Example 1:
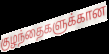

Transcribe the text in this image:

குழந்தைகளுக்கான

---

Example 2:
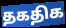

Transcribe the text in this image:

தகதிக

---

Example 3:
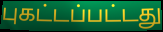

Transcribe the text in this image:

புகட்டப்பட்டது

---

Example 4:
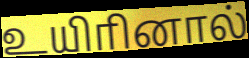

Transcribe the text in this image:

உயிரினால்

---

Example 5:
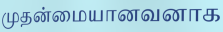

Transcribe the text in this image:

முதன்மையானவனாக